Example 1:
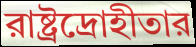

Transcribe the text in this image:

রাষ্ট্রদ্রোহীতার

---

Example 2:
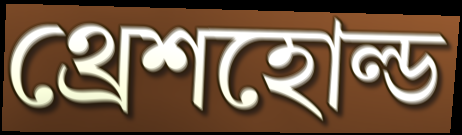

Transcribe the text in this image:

থ্রেশহোল্ড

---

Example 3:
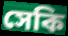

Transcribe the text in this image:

সেকি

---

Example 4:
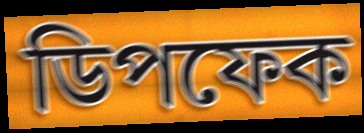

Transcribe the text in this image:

ডিপফেক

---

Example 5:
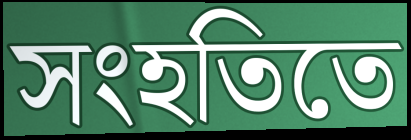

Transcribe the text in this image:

সংহতিতে